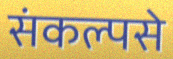
संकल्पसे